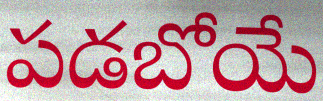
పడబోయే